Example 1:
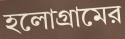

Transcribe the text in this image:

হলোগ্রামের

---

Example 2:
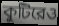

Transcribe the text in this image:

কুটিরেও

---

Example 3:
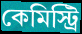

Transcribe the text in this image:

কেমিস্ট্রি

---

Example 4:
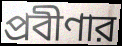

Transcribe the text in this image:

প্রবীণার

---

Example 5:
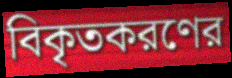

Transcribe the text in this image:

বিকৃতকরণের